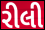
રીલી